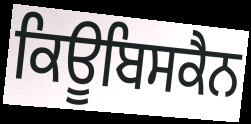
ਕਿਊਬਿਸਕੈਨ